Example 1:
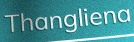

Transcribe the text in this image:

Thangliena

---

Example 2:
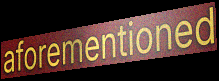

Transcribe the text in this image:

aforementioned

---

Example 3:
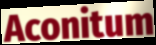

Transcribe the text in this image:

Aconitum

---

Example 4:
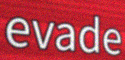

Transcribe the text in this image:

evade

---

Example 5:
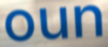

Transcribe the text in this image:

oun